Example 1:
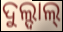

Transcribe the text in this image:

ଦୁଲ୍ଦାଲ୍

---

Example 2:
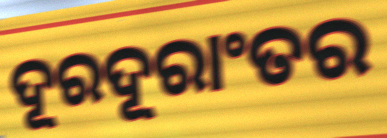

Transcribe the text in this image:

ଦୂରଦୂରାଂତର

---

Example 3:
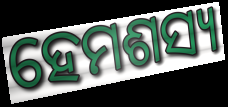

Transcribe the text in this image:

ହେମଶସ୍ୟ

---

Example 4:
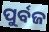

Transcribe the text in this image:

ପୁର୍ବଜ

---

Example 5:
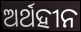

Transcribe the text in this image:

ଅର୍ଥହୀନ